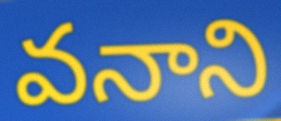
వనాని